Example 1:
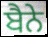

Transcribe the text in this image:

ਬੈਨੇ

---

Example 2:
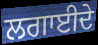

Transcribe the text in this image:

ਲਗਾਈਦੇ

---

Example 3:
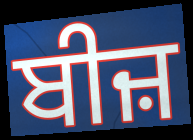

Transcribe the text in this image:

ਬੀਜ਼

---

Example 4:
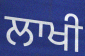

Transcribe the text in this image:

ਲਾਖੀ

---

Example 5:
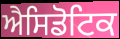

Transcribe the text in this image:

ਐਸਿਡੋਟਿਕ